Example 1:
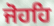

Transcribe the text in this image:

ਜੋਹਹਿ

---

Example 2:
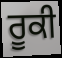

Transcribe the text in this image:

ਰੂਕੀ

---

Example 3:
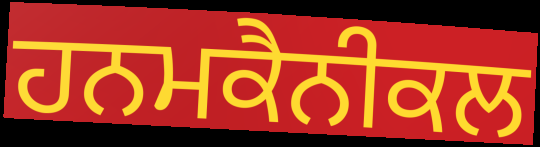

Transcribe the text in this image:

ਹਨਮਕੈਨੀਕਲ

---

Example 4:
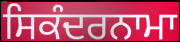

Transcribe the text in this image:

ਸਿਕੰਦਰਨਾਮਾ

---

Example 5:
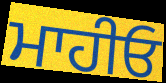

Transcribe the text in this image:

ਮਾਹੀਓ